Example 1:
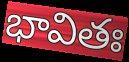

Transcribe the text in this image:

భావితః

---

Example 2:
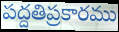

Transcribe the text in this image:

పద్దతిప్రకారము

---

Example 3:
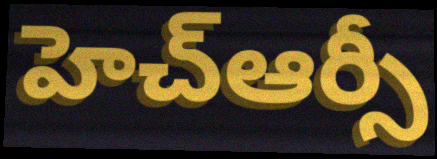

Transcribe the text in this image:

హెచ్ఆర్సీ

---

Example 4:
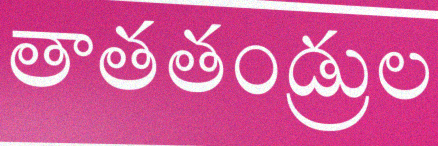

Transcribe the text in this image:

తాతతండ్రుల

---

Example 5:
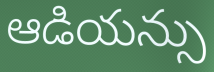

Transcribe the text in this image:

ఆడియన్సు